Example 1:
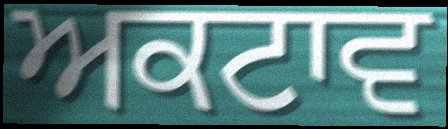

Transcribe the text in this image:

ਅਕਟਾਵ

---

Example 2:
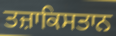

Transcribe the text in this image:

ਤਜ਼ਾਕਿਸਤਾਨ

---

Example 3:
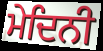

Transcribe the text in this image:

ਮੇਦਿਨੀ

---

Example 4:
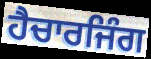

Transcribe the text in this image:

ਹੈਚਾਰਜਿੰਗ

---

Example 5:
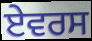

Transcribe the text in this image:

ਏਵਰਸ